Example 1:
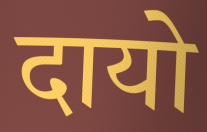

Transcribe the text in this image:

दायो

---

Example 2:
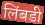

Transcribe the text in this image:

लिंबडी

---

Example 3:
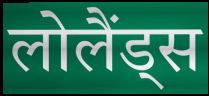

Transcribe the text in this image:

लोलैंड्स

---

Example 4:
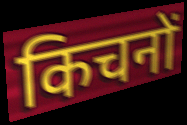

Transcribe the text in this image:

किचनों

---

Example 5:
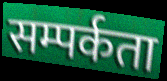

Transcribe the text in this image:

सम्पर्कता